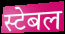
स्‍टेबल